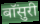
बॉंसुरी